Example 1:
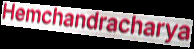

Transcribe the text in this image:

Hemchandracharya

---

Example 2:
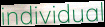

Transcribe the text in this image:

individual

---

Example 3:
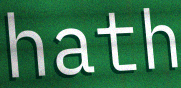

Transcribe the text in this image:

hath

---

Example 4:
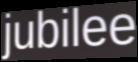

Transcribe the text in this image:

jubilee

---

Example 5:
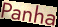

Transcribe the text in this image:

Panha